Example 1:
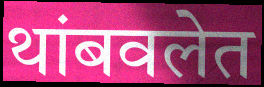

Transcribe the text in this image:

थांबवलेत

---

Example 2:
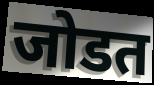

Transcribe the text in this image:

जोडत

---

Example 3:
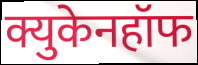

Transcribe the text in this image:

क्युकेनहॉफ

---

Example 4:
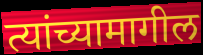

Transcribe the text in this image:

त्यांच्यामागील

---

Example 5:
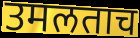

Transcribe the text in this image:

उमलताच